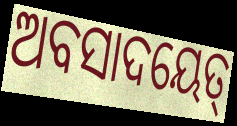
ଅବସାଦୟେତ୍